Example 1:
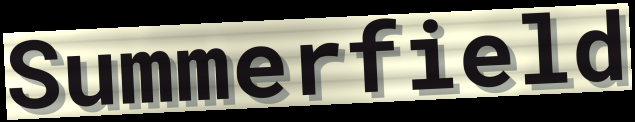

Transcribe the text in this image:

Summerfield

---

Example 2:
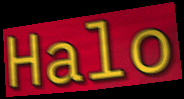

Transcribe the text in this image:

Halo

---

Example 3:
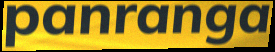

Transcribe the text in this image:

panranga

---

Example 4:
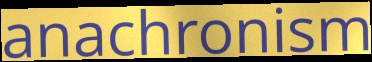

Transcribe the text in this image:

anachronism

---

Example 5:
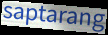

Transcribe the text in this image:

saptarang